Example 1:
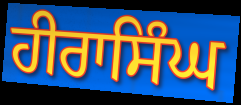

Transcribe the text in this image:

ਹੀਰਾਸਿੰਘ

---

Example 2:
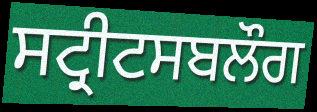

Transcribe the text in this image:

ਸਟ੍ਰੀਟਸਬਲੌਗ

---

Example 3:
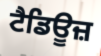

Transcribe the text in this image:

ਟੈਡਿਊਜ਼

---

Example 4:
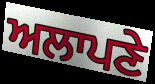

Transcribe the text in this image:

ਅਲਾਪਣੇ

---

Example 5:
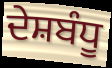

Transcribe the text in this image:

ਦੇਸ਼ਬੰਧੂ